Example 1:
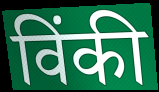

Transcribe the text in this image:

विंकी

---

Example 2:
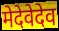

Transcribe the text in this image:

मेदेवेदेव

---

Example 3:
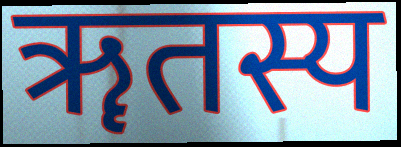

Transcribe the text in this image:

ॠतस्य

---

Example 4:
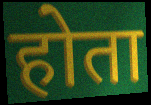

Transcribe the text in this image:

होता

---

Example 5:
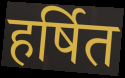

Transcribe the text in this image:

हर्षित